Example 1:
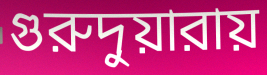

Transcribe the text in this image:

গুরুদুয়ারায়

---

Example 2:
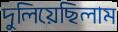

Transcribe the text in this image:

দুলিয়েছিলাম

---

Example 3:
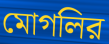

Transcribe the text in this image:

মোগলির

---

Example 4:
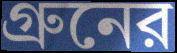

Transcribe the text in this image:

গ্রুনের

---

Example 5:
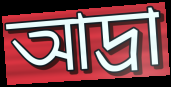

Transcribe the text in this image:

আদ্রা